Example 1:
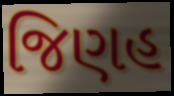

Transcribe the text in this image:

જિણહ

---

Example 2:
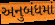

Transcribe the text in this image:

અનુબંધમાં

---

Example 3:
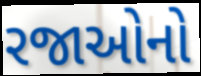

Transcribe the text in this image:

રજાઓનો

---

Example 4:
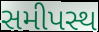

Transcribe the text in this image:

સમીપસ્થ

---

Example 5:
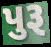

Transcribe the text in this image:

પુરૂ